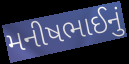
મનીષભાઈનું